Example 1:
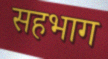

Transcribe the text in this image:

सहभाग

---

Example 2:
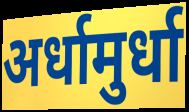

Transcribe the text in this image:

अर्धामुर्धा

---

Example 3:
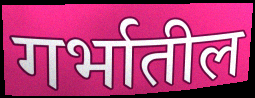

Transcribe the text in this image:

गर्भातील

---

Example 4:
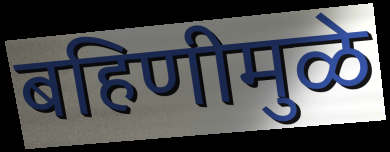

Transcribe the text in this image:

बहिणीमुळे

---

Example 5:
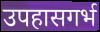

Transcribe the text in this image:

उपहासगर्भ